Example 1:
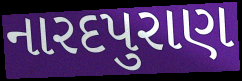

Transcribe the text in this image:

નારદપુરાણ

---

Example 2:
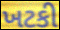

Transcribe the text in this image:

ખટકી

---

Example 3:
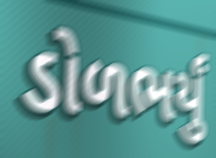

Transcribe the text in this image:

ડોળભર્યું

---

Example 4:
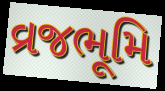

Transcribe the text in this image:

વ્રજભૂમિ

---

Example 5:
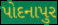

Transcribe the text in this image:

પોદનાપુર